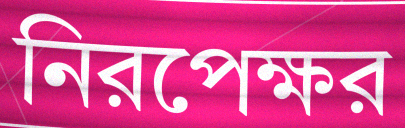
নিরপেক্ষর